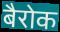
बैरोक